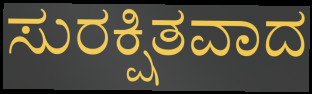
ಸುರಕ್ಷಿತವಾದ